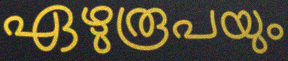
ഏഴുരൂപയും